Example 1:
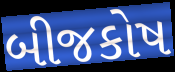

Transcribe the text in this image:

બીજકોષ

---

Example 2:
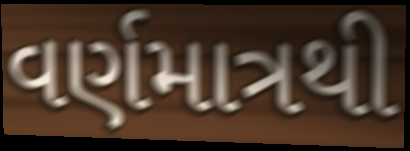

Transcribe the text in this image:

વર્ણમાત્રથી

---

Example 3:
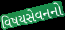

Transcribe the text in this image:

વિષયસેવનનો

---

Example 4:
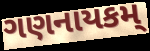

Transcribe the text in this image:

ગણનાયકમ્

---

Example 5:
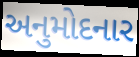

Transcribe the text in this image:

અનુમોદનાર